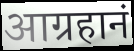
आग्रहानं